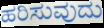
ಹರಿಸುವುದು